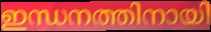
ഇന്ധനത്തിനായി